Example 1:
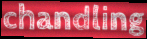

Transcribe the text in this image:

chandling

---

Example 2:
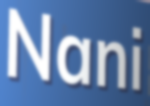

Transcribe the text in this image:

Nani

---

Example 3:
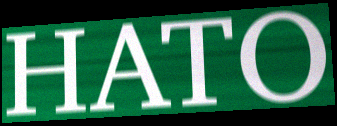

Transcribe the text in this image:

HATO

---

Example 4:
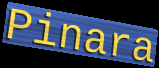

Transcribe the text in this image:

Pinara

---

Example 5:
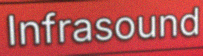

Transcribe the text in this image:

Infrasound